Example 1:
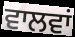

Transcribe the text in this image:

ਵਾਲਵਾਂ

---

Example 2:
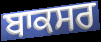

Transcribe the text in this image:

ਬਾਕਸਰ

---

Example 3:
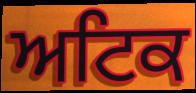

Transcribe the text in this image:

ਅਟਿਕ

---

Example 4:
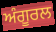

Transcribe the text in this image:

ਅੰਗੂਰਲ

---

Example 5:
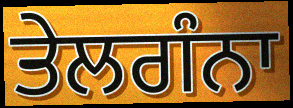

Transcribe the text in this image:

ਤੇਲਗੰਨਾ